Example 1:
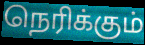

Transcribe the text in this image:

நெரிக்கும்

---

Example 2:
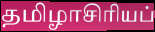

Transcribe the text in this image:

தமிழாசிரியப்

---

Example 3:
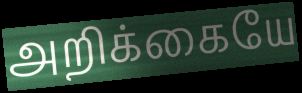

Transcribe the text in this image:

அறிக்கையே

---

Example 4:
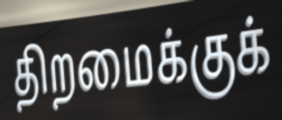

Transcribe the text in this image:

திறமைக்குக்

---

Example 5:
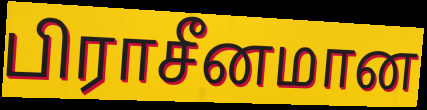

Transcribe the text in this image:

பிராசீனமான